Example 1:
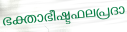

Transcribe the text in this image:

ഭക്താഭീഷ്ടഫലപ്രദാ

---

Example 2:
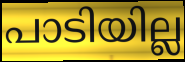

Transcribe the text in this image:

പാടിയില്ല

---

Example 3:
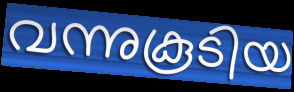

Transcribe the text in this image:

വന്നുകൂടിയ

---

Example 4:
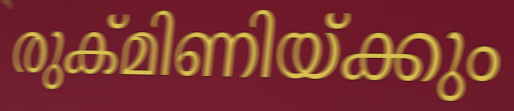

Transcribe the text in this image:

രുക്മിണിയ്ക്കും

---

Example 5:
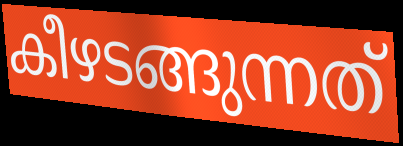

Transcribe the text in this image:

കീഴടങ്ങുന്നത്